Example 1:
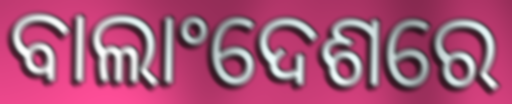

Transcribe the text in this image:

ବାଲାଂଦେଶରେ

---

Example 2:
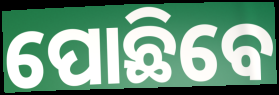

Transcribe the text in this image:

ପୋଛିବେ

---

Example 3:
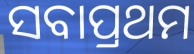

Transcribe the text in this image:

ସବାପ୍ରଥମ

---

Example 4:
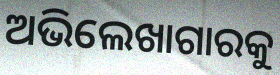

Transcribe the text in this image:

ଅଭିଲେଖାଗାରକୁ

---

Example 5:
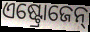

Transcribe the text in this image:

ଏଷ୍ଟ୍ରୋଜେନ୍